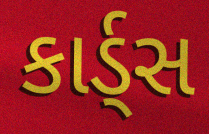
કાર્ડ્સ